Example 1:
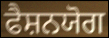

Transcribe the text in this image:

ਫੈਸ਼ਨਯੋਗ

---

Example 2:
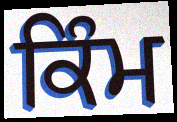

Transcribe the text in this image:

ਕਿੰਮ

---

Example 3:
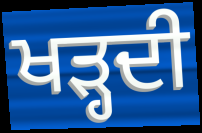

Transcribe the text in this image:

ਖੜ੍ਹਦੀ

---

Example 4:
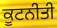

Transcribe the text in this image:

ਕੂਟਨੀਤੀ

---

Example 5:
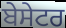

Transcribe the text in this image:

ਬੇਸੇਟਰ